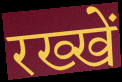
रख्खें